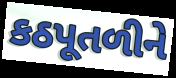
કઠપૂતળીને